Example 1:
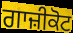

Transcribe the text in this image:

ਗਾਜ਼ੀਕੋਟ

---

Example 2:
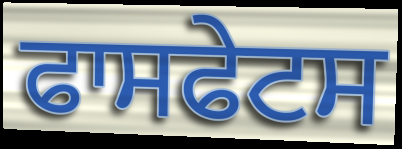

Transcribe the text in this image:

ਫਾਸਫੇਟਸ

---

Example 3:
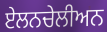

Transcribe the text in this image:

ਏਲਨਚੇਲੀਅਨ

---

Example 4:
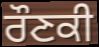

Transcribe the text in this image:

ਰੌਣਕੀ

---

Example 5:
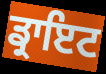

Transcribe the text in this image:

ਡ੍ਰਾਇਟ